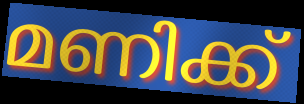
മണിക്ക്